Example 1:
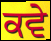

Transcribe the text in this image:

ਕਵੇ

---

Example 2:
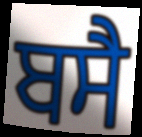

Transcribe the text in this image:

ਬਸੈ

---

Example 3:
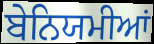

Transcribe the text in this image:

ਬੇਨਿਯਮੀਆਂ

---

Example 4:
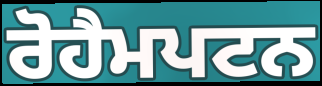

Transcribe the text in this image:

ਰੋਹੈਮਪਟਨ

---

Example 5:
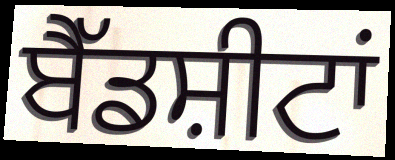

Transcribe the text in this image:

ਬੈੱਡਸ਼ੀਟਾਂ